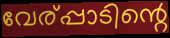
വേര്പ്പാടിന്റെ